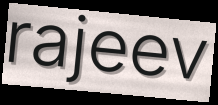
rajeev